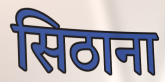
सिठाना